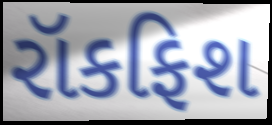
રૉકફિશ